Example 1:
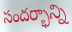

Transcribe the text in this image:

సందర్భాన్ని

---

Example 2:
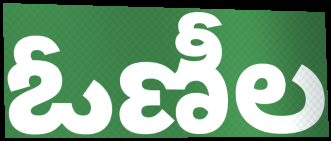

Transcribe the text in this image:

ఓణీల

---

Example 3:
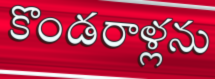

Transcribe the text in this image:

కొండరాళ్లను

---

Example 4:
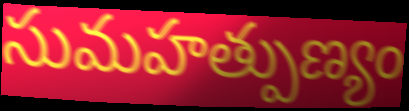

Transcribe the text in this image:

సుమహత్పుణ్యం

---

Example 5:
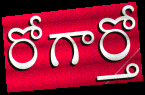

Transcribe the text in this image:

రోగార్తో